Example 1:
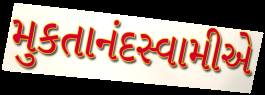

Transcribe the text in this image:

મુકતાનંદસ્વામીએ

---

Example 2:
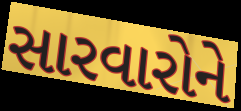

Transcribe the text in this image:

સારવારોને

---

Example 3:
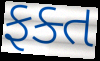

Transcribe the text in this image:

ફક્ત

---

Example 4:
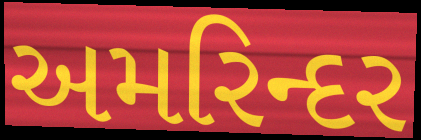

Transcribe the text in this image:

અમરિન્દર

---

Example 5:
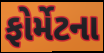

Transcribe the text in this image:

ફોર્મેટના